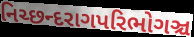
નિચ્છન્દરાગપરિભોગઞ્ચ